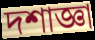
দশাজ্ঞা